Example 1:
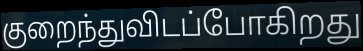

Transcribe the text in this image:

குறைந்துவிடப்போகிறது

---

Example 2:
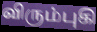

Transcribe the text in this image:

விரும்புகி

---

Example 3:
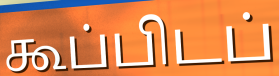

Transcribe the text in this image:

கூப்பிடப்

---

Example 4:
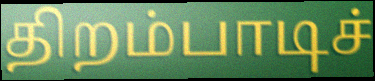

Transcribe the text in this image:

திறம்பாடிச்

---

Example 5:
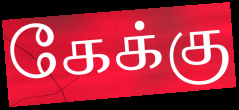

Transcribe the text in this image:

கேக்கு